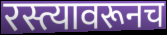
रस्त्यावरूनच